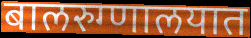
बालरुग्णालयात